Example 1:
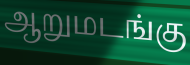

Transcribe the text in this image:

ஆறுமடங்கு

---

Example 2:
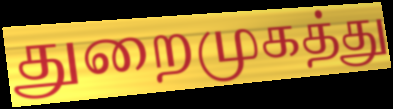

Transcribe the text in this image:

துறைமுகத்து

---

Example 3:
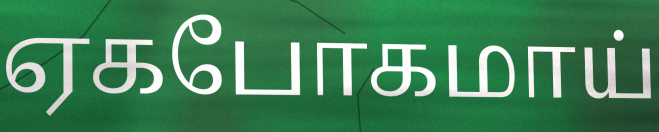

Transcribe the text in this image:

ஏகபோகமாய்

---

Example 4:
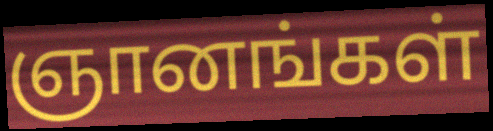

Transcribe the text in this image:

ஞானங்கள்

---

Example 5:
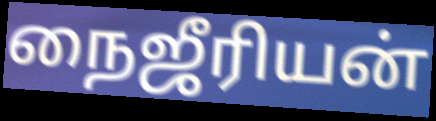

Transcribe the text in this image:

நைஜீரியன்